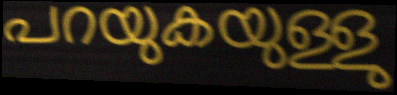
പറയുകയുള്ളു